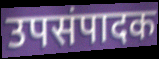
उपसंपादक